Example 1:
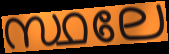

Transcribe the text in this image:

സ്ഥലേ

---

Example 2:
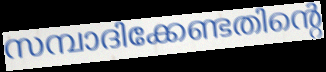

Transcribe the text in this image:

സമ്പാദിക്കേണ്ടതിന്റെ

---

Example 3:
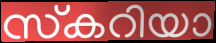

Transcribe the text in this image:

സ്‌കറിയാ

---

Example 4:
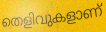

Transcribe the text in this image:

തെളിവുകളാണ്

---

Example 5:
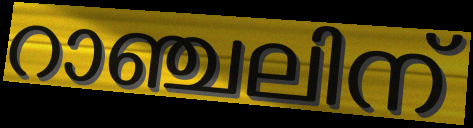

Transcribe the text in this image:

റാഞ്ചലിന്